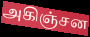
அகிஞ்சன